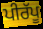
ਪੀਰੱਪੂ